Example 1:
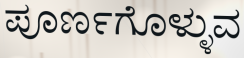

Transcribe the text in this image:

ಪೂರ್ಣಗೊಳ್ಳುವ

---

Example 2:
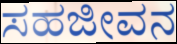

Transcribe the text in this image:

ಸಹಜೀವನ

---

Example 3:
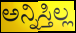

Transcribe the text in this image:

ಅನ್ನಿಸ್ತಿಲ್ಲ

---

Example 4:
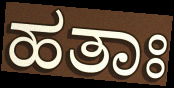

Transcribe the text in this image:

ಹತಾಃ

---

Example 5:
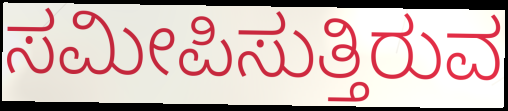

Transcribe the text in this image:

ಸಮೀಪಿಸುತ್ತಿರುವ